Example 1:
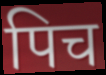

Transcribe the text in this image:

पिच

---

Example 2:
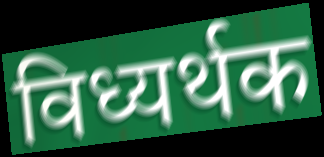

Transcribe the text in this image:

विध्यर्थक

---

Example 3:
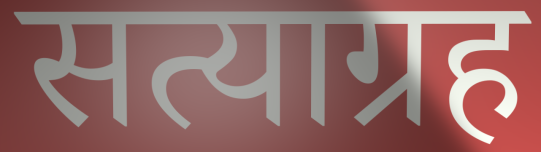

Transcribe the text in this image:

सत्याग्रह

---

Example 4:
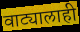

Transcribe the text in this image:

वाट्यालाही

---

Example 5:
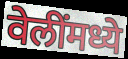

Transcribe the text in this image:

वेलींमध्ये